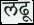
लढू